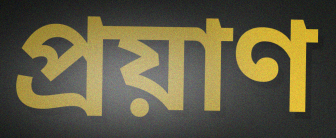
প্ৰয়াণ